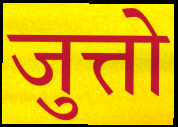
जुत्तो